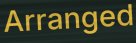
Arranged